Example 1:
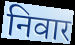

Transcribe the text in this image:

निवार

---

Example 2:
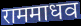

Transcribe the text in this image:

राममाधव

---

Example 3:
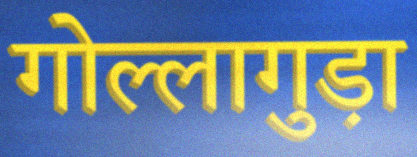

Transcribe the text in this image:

गोल्लागुड़ा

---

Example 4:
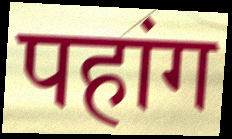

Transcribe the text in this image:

पहांग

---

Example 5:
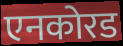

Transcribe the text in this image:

एनकोरड